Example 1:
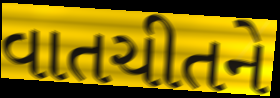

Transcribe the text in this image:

વાતચીતને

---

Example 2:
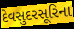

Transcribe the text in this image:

દેવસુદરસૂરિના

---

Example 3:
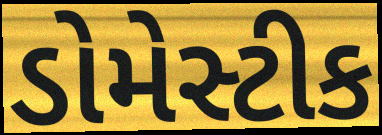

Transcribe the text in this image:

ડોમેસ્ટીક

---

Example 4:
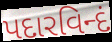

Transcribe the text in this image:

પદારવિન્દં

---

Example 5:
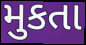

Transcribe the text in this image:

મુકતા